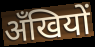
अँखियों